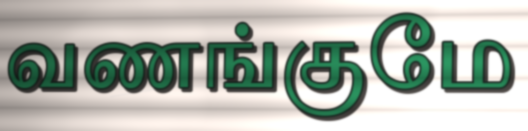
வணங்குமே